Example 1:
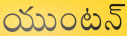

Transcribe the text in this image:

యుంటన్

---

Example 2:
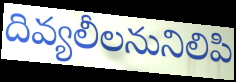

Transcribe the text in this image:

దివ్యలీలనునిలిపి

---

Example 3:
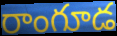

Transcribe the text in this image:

రాంగూడ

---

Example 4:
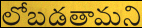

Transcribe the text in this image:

లోబడతామని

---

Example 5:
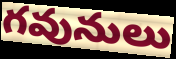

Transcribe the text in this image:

గవునులు